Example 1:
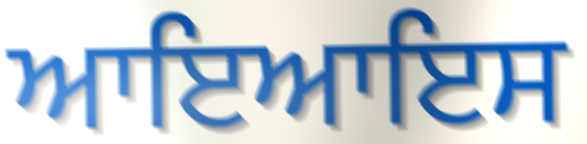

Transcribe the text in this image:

ਆਇਆਇਸ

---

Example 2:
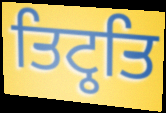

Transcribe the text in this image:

ਤਿਟ੍ਠਤਿ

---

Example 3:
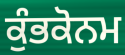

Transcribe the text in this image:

ਕੁੰਭਕੋਨਮ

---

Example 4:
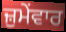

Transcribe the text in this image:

ਜ਼ੁਮੇਂਵਾਰ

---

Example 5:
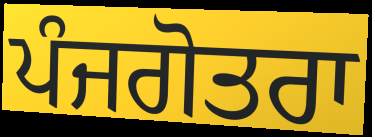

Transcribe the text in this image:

ਪੰਜਗੋਤਰਾ